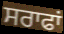
ਸਰਾਫਾਂ